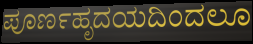
ಪೂರ್ಣಹೃದಯದಿಂದಲೂ